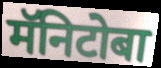
मॅनिटोबा